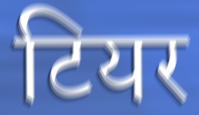
टियर